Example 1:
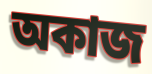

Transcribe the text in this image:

অকাজ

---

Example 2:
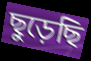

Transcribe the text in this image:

ছুড়েছি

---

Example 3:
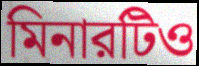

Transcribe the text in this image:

মিনারটিও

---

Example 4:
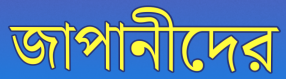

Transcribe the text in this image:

জাপানীদের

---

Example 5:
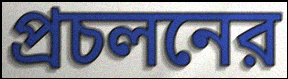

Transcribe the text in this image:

প্রচলনের